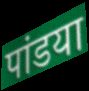
पांडया